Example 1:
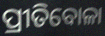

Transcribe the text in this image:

ପ୍ରୀତିବୋଳା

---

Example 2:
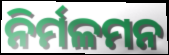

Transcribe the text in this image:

ନିର୍ମଳମନ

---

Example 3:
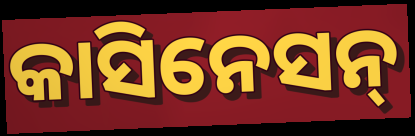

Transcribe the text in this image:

କାସିନେସନ୍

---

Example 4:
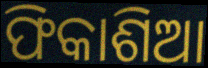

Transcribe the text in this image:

ଫିକାଶିଆ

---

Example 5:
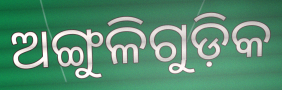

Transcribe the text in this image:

ଅଙ୍ଗୁଳିଗୁଡ଼ିକ